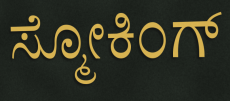
ಸ್ಮೋಕಿಂಗ್